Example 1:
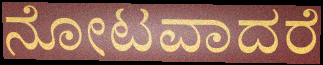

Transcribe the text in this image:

ನೋಟವಾದರೆ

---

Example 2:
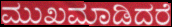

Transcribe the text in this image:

ಮುಖಮಾಡಿದರೆ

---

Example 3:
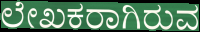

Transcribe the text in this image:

ಲೇಖಕರಾಗಿರುವ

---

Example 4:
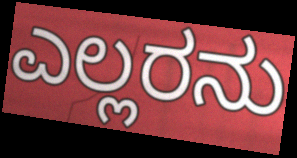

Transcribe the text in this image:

ಎಲ್ಲರನು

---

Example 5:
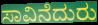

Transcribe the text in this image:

ಸಾವಿನೆದುರು